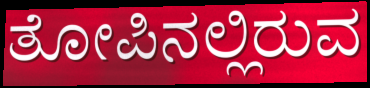
ತೋಪಿನಲ್ಲಿರುವ